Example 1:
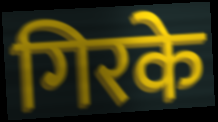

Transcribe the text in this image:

गिरके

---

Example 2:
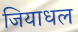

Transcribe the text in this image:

जियाधल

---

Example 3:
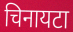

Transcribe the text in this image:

चिनायटा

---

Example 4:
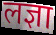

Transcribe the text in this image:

लज्ञा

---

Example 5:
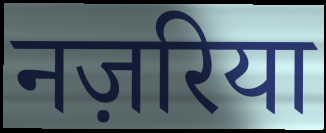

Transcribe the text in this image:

नज़रिया